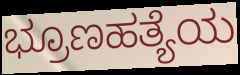
ಭ್ರೂಣಹತ್ಯೆಯ